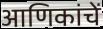
आणिकांचें